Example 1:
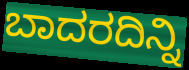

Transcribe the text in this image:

ಬಾದರದಿನ್ನಿ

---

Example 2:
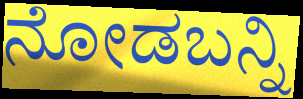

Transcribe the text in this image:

ನೋಡಬನ್ನಿ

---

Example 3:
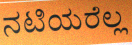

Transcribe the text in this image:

ನಟಿಯರೆಲ್ಲ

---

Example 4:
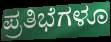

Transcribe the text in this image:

ಪ್ರತಿಭೆಗಳೂ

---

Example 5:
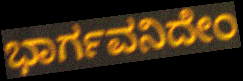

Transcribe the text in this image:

ಭಾರ್ಗವನಿದೇಂ